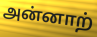
அன்னாற்